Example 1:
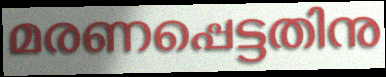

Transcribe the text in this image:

മരണപ്പെട്ടതിനു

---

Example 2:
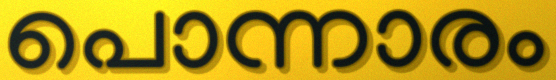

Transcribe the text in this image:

പൊന്നാരം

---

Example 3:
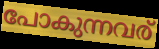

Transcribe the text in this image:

പോകുന്നവര്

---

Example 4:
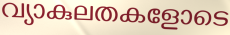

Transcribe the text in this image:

വ്യാകുലതകളോടെ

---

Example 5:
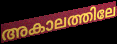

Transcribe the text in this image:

അകാലത്തിലേ